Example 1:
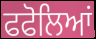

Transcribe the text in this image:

ਫਫੋਲਿਆਂ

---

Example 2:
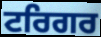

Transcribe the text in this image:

ਟਰਿਗਰ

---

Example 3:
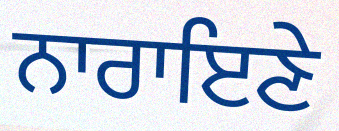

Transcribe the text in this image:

ਨਾਰਾਇਣੇ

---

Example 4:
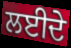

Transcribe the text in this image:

ਲਈਦੇ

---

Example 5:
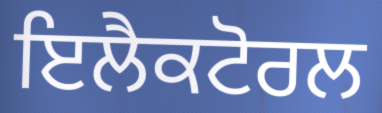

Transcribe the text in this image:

ਇਲੈਕਟੋਰਲ